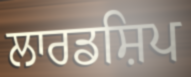
ਲਾਰਡਸ਼ਿਪ